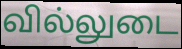
வில்லுடை